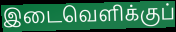
இடைவெளிக்குப்